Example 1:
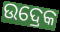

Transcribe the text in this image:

ଉଦ୍ରେକ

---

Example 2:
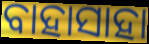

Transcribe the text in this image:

ବାହାସାହା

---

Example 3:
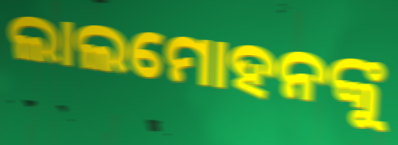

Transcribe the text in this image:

ଲାଲମୋହନଙ୍କୁ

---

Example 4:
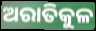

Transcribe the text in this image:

ଅରାତିକୁଳ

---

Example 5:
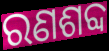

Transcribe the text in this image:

ରଣଶବ୍ଦ